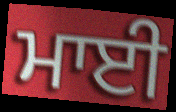
ਮਾਈ